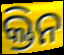
କ୍ତିନ